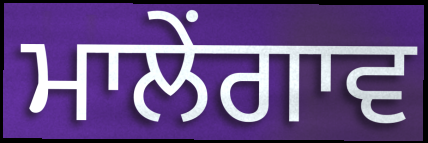
ਮਾਲੇਂਗਾਵ